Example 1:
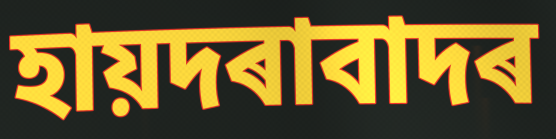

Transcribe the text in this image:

হায়দৰাবাদৰ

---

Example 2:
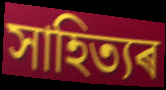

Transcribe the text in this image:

সাহিত্যৰ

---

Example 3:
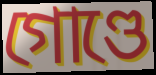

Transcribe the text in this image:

গোণ্ডে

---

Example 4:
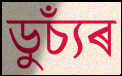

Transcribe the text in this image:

ডুচ্যঁৰ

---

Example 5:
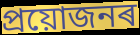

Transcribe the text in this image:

প্ৰয়োজনৰ